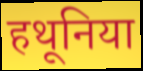
हथूनिया